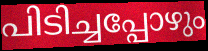
പിടിച്ചപ്പോഴും